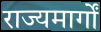
राज्यमार्गों